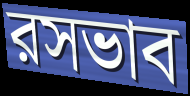
রসভাব